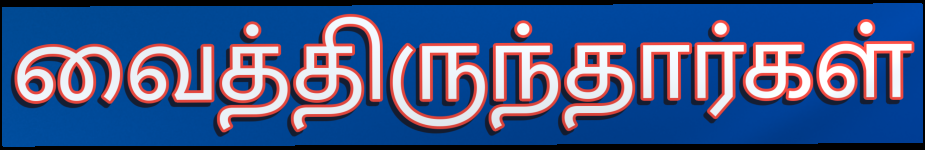
வைத்திருந்தார்கள்